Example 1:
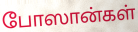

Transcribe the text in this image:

போஸான்கள்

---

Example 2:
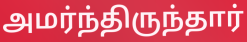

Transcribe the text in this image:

அமர்ந்திருந்தார்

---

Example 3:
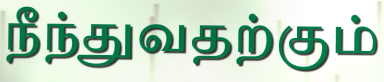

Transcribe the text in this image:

நீந்துவதற்கும்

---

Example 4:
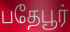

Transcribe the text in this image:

பதேபூர்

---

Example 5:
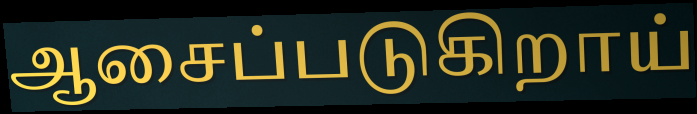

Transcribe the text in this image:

ஆசைப்படுகிறாய்